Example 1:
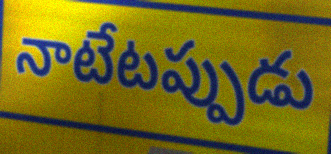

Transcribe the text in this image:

నాటేటప్పుడు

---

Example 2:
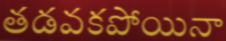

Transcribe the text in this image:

తడవకపోయినా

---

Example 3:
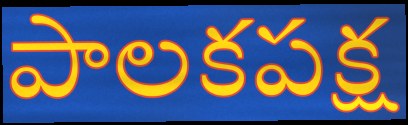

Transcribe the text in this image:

పాలకపక్ష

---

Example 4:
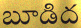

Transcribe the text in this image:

బూడిద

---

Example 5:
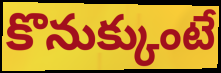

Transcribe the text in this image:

కొనుక్కుంటే